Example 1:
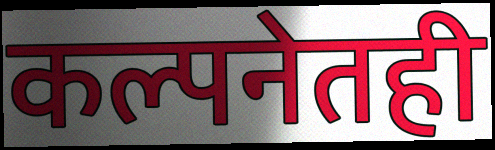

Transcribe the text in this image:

कल्पनेतही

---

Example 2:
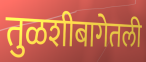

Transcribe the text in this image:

तुळशीबागेतली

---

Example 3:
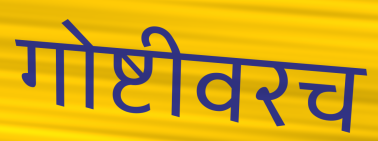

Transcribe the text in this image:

गोष्टीवरच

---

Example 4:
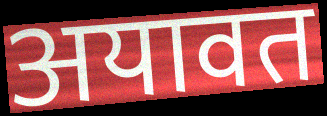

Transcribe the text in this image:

अयावत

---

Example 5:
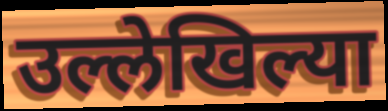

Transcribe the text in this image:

उल्लेखिल्या